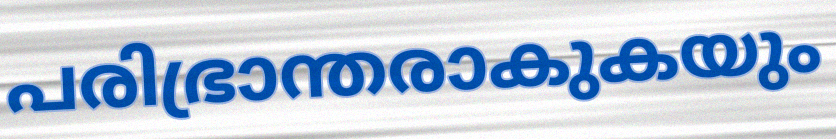
പരിഭ്രാന്തരാകുകയും